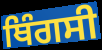
ਥਿੰਗਸੀ